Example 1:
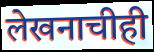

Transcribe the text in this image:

लेखनाचीही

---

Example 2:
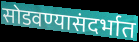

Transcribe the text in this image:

सोडवण्यासंदर्भात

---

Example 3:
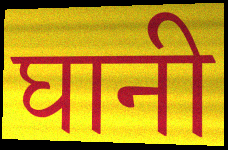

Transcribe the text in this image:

घानी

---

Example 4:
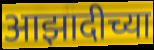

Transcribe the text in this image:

आझादीच्या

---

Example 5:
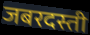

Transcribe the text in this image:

जबरदस्ती